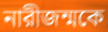
নারীজন্মকে